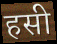
हसी